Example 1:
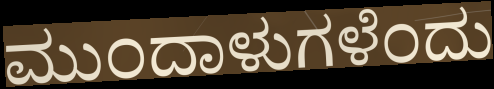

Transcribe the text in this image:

ಮುಂದಾಳುಗಳೆಂದು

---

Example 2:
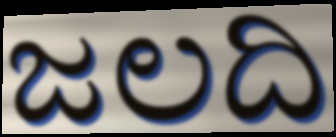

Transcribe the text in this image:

ಜಲದಿ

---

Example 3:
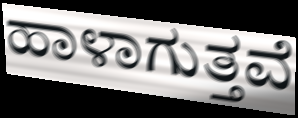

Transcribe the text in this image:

ಹಾಳಾಗುತ್ತವೆ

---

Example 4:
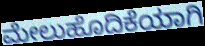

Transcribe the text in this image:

ಮೇಲುಹೊದಿಕೆಯಾಗಿ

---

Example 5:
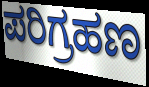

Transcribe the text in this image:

ಪರಿಗ್ರಹಣ